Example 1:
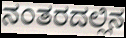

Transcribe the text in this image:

ನಂತರದಲ್ಲಿನ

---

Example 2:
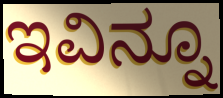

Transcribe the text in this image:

ಇವಿನ್ನೂ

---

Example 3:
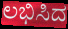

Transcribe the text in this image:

ಲಭಿಸಿದ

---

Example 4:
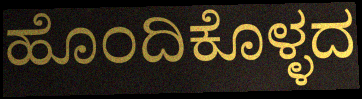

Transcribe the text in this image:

ಹೊಂದಿಕೊಳ್ಳದ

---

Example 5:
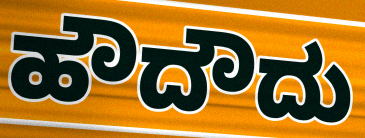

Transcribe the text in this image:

ಹೌದೌದು